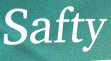
Safty